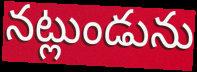
నట్లుండును